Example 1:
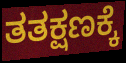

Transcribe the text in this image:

ತತಕ್ಷಣಕ್ಕೆ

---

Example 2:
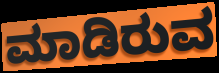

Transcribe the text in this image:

ಮಾಡಿರುವ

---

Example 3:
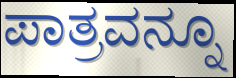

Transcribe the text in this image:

ಪಾತ್ರವನ್ನೂ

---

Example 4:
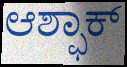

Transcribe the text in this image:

ಆಶ್ಫಾಕ್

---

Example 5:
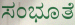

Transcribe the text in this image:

ಸಂಭೂತೆ